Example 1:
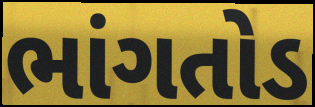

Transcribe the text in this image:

ભાંગતોડ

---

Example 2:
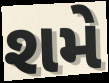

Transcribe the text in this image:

શમે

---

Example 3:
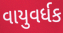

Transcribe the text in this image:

વાયુવર્ધક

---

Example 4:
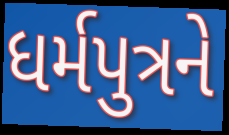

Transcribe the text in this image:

ધર્મપુત્રને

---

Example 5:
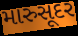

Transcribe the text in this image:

મારુસૂદર